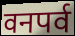
वनपर्व